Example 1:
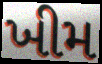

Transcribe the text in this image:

ખીમ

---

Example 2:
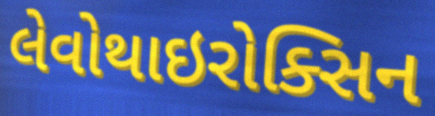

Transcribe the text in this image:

લેવોથાઇરોક્સિન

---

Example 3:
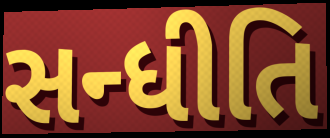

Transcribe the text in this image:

સન્ધીતિ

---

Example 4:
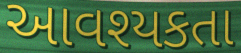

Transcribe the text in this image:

આવશ્યકતા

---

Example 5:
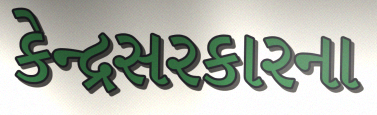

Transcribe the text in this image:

કેન્દ્રસરકારના